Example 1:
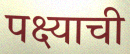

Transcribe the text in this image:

पक्ष्याची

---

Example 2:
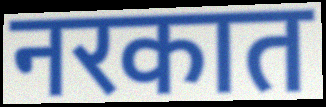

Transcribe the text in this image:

नरकात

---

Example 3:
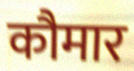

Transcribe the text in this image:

कौमार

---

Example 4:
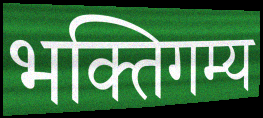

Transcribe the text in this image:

भक्तिगम्य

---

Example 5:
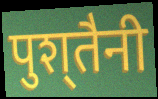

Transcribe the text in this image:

पुश्तैनी